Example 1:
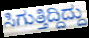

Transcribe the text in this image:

ಸಿಗುತ್ತಿದ್ದಿದ್ದು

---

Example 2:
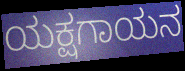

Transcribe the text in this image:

ಯಕ್ಷಗಾಯನ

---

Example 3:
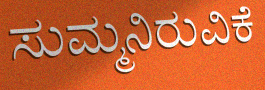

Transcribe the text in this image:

ಸುಮ್ಮನಿರುವಿಕೆ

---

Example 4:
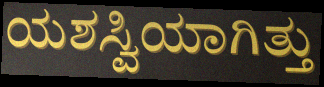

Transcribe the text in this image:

ಯಶಸ್ವಿಯಾಗಿತ್ತು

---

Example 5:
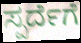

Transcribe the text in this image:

ಸ್ಪರ್ದೆಗೆ